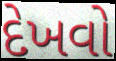
દેખવો